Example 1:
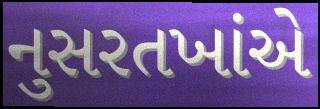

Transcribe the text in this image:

નુસરતખાંએ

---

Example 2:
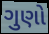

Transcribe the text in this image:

ગુણો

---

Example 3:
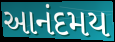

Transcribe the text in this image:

આનંદમય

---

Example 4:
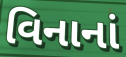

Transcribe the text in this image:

વિનાનાં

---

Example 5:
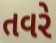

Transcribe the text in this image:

તવરે